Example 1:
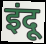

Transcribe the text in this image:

इंदू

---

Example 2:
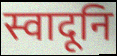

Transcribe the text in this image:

स्वादूनि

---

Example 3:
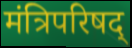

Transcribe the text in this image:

मंत्रिपरिषद्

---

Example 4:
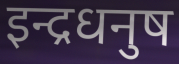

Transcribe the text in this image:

इन्‍द्रधनुष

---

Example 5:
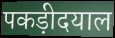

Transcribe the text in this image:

पकड़ीदयाल